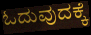
ಓದುವುದಕ್ಕೆ